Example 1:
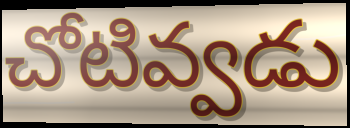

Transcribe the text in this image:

చోటివ్వడు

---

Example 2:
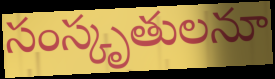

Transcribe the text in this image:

సంస్కృతులనూ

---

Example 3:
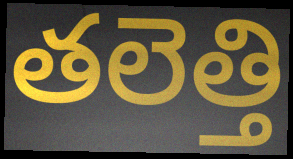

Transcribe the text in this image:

తలెత్తి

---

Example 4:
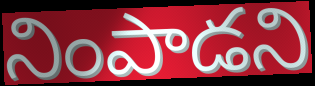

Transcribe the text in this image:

నింపాడని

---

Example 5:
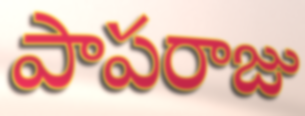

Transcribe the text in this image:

పాపరాజు